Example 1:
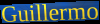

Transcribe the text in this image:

Guillermo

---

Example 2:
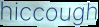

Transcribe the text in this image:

hiccough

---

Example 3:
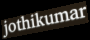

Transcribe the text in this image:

jothikumar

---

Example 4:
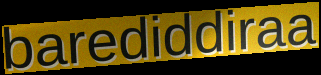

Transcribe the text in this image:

barediddiraa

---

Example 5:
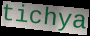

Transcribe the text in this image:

tichya